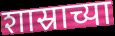
शास्राच्या